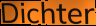
Dichter